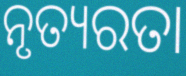
ନୃତ୍ୟରତା